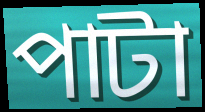
পাটা